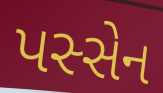
પસ્સેન